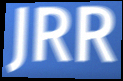
JRR